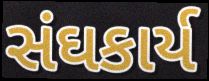
સંઘકાર્ય